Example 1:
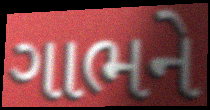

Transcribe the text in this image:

ગાભને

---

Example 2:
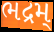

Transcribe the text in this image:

ભદ્રમ્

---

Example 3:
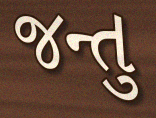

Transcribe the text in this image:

જન્તુ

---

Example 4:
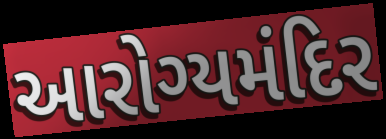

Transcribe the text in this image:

આરોગ્યમંદિર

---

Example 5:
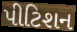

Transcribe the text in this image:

પીટિશન